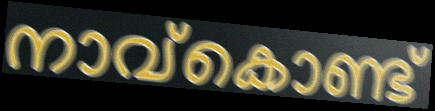
നാവ്കൊണ്ട്